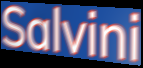
Salvini